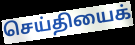
செய்தியைக்